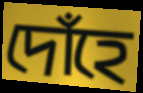
দোঁহে